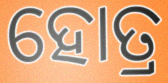
ହୋତ୍ର